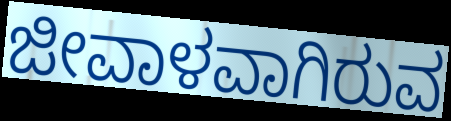
ಜೀವಾಳವಾಗಿರುವ